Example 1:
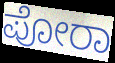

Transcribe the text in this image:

ಪೋರಾ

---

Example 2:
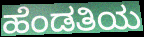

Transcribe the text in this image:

ಹೆಂಡತಿಯ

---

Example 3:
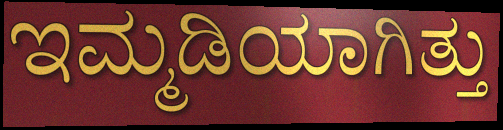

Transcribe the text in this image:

ಇಮ್ಮಡಿಯಾಗಿತ್ತು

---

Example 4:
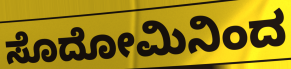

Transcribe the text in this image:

ಸೊದೋಮಿನಿಂದ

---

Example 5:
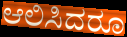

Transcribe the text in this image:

ಆಲಿಸಿದರೂ